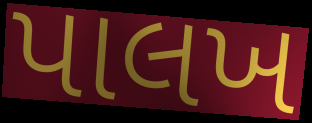
પાલખ